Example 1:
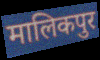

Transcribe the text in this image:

मालिकपुर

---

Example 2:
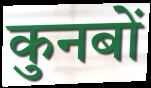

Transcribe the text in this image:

कुनबों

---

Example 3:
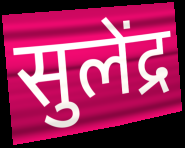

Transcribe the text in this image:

सुलेंद्र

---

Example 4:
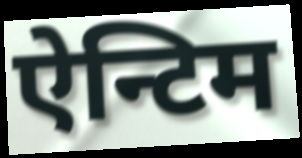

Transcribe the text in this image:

ऐन्टिम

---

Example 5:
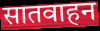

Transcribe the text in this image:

सातवाहन